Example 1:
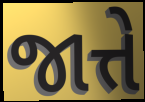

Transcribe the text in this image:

જાત્તે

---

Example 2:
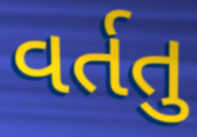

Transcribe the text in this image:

વર્તતુ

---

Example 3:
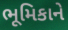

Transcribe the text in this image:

ભૂમિકાને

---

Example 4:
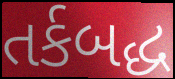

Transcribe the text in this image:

તર્કબદ્ધ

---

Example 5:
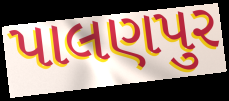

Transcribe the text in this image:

પાલણપુર